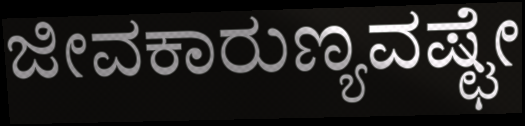
ಜೀವಕಾರುಣ್ಯವಷ್ಟೇ